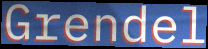
Grendel